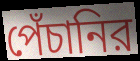
পেঁচানির